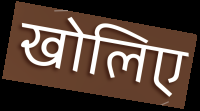
खोलिए